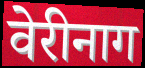
वेरीनाग